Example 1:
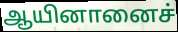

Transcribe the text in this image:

ஆயினானைச்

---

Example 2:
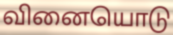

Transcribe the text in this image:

வினையொடு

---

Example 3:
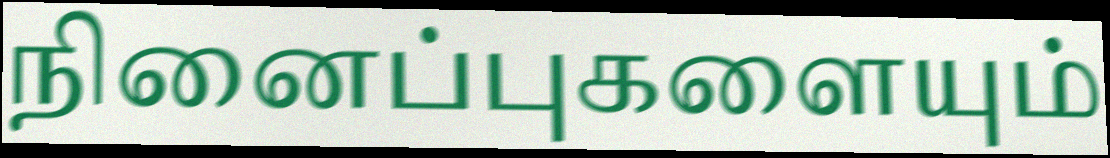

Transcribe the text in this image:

நினைப்புகளையும்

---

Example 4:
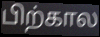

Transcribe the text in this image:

பிற்கால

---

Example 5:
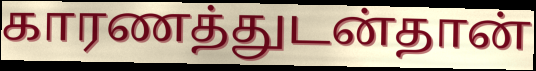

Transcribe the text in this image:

காரணத்துடன்தான்